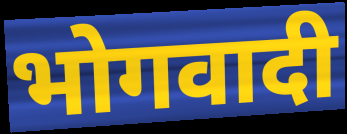
भोगवादी